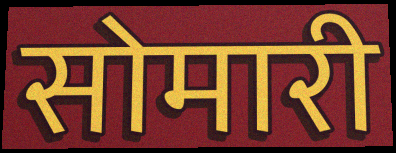
सोमारी